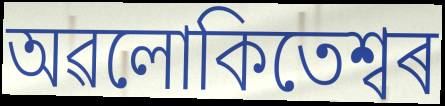
অৱলোকিতেশ্বৰ